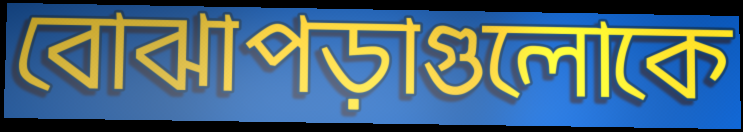
বোঝাপড়াগুলোকে